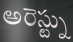
అరెస్ట్ను